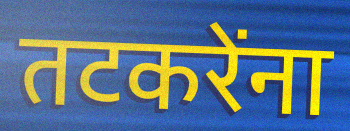
तटकरेंना